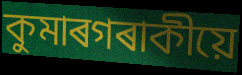
কুমাৰগৰাকীয়ে